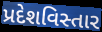
પ્રદેશવિસ્તાર